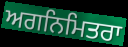
ਅਗਨਿਮਿਤਰਾ